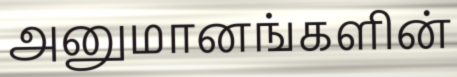
அனுமானங்களின்